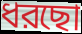
ধরছো